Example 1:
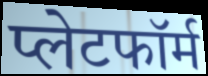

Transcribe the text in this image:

प्लेटफॉर्म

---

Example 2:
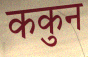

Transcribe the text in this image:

ककुन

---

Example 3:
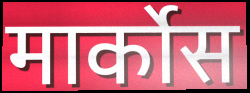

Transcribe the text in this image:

मार्कोस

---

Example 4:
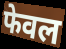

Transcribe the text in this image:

फेवल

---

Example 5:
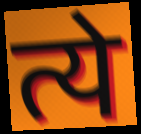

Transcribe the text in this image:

त्ये